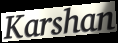
Karshan